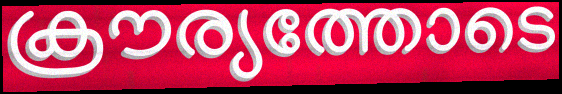
ക്രൗര്യത്തോടെ